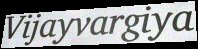
Vijayvargiya